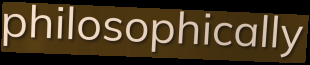
philosophically